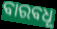
ବାରବଧୂ